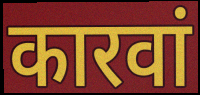
कारवां